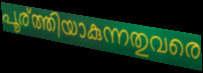
പൂര്ത്തിയാകുന്നതുവരെ